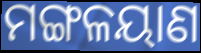
ମଙ୍ଗଳୟାଣ